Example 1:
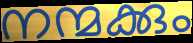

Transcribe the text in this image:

നന്മക്കും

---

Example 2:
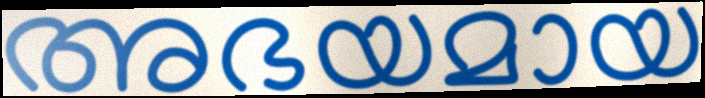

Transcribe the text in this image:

അഭയമായ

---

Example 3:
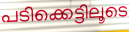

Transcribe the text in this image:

പടിക്കെട്ടിലൂടെ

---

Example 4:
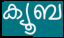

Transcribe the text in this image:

ക്യൂബ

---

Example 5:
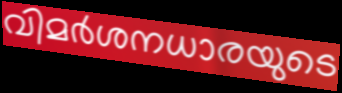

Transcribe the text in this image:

വിമർശനധാരയുടെ